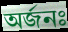
অর্জনঃ